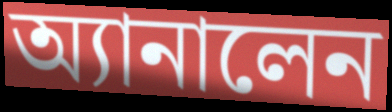
অ্যানালেন